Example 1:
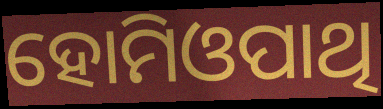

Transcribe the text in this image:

ହୋମିଓପାଥି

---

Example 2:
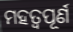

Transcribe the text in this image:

ମହତ୍ୱପୂର୍ଣ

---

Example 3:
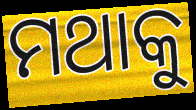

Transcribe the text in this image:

ମଥାକୁ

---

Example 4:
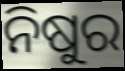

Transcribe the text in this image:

ନିଷୁର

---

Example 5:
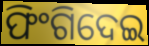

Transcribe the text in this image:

ଫିଂଗିଦେଇ